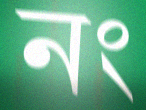
নং